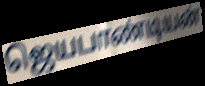
ஜெயபாண்டியன்